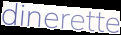
dinerette